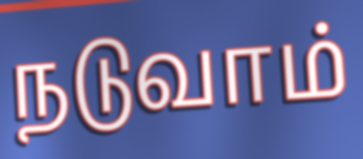
நடுவாம்